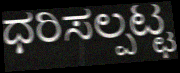
ಧರಿಸಲ್ಪಟ್ಟ